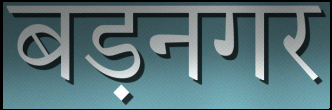
बड़नगर